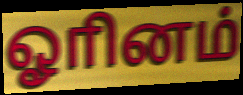
ஓரினம்